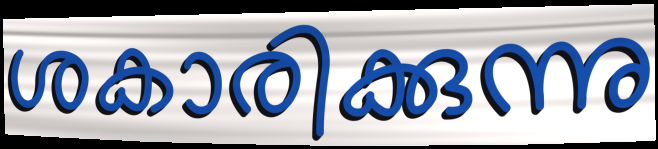
ശകാരിക്കുന്നു